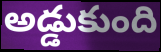
అడ్డుకుంది